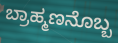
ಬ್ರಾಹ್ಮಣನೊಬ್ಬ